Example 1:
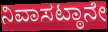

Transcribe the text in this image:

ನಿವಾಸಟ್ಠಾನೇ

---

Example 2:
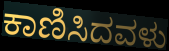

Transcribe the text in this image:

ಕಾಣಿಸಿದವಳು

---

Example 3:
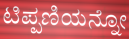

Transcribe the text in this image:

ಟಿಪ್ಪಣಿಯನ್ನೋ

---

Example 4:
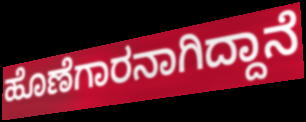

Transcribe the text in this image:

ಹೊಣೆಗಾರನಾಗಿದ್ದಾನೆ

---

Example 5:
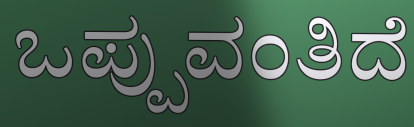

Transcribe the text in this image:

ಒಪ್ಪುವಂತಿದೆ